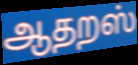
ஆதறஸ்